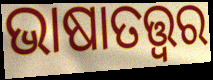
ଭାଷାତତ୍ତ୍ଵର